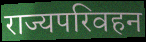
राज्यपरिवहन